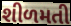
શીળમતી